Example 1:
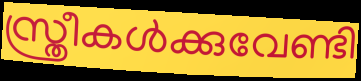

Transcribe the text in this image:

സ്ത്രീകൾക്കുവേണ്ടി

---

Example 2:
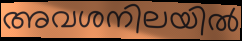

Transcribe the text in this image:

അവശനിലയിൽ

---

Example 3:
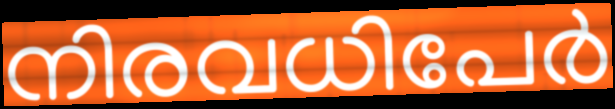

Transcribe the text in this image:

നിരവധിപേർ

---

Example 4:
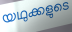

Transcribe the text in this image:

യഥുക്കളുടെ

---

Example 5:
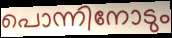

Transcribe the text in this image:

പൊന്നിനോടും